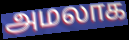
அமலாக